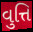
વુત્તિ